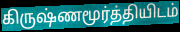
கிருஷ்ணமூர்த்தியிடம்